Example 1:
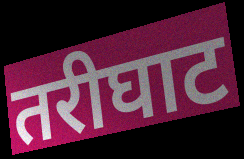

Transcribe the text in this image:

तरीघाट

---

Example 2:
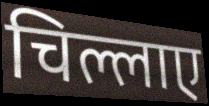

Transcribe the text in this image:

चिल्लाए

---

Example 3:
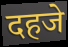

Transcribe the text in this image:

दहजे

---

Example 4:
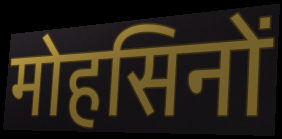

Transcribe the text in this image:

मोहसिनों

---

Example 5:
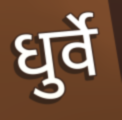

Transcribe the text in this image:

धुर्वे